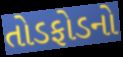
તોડફોડનો